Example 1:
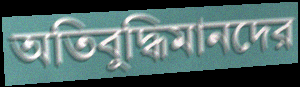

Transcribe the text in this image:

অতিবুদ্ধিমানদের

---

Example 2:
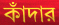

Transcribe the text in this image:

কাঁদার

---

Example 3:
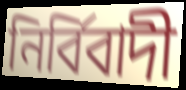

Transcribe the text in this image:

নির্বিবাদী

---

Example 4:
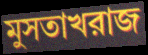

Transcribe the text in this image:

মুসতাখরাজ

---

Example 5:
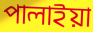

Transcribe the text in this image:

পালাইয়া